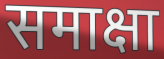
समाक्षा